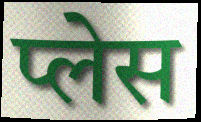
प्लेस